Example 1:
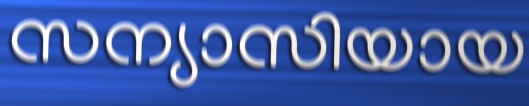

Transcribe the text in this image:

സന്യാസിയായ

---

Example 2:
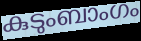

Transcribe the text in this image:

കുടുംബാംഗം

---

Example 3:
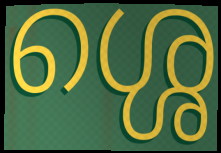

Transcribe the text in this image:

ശ്ശെ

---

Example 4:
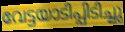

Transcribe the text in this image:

വേട്ടയാടിപ്പിടിച്ചു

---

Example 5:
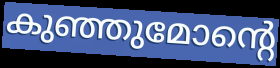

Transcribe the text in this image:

കുഞ്ഞുമോന്റെ